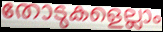
തോടുകളെല്ലാം